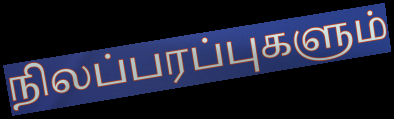
நிலப்பரப்புகளும்